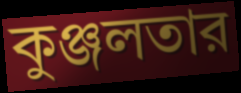
কুঞ্জলতার